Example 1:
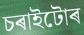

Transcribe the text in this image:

চৰাইটোৰ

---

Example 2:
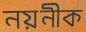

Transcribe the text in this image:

নয়নীক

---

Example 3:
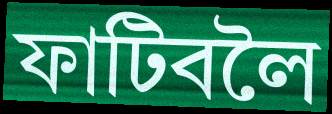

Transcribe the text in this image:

ফাটিবলৈ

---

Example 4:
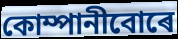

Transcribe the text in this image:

কোম্পানীবোৰে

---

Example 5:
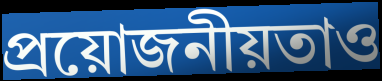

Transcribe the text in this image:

প্ৰয়োজনীয়তাও